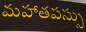
మహాతపస్సు